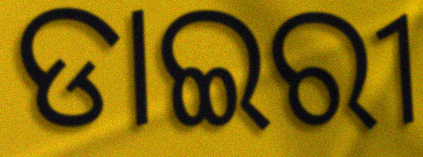
ଡାଇରୀ